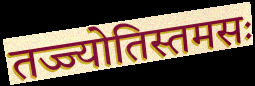
तज्ज्योतिस्तमसः